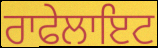
ਰਾਫੇਲਾਇਟ